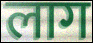
लाग